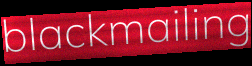
blackmailing